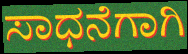
ಸಾಧನೆಗಾಗಿ